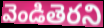
వెండితెరని